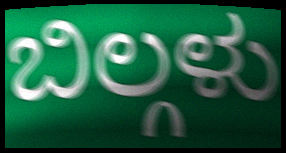
ಬಿಲ್ಗಳು